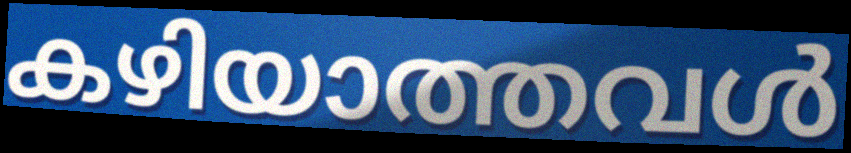
കഴിയാത്തവൾ